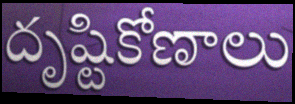
దృష్టికోణాలు